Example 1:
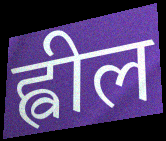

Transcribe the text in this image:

ह्वील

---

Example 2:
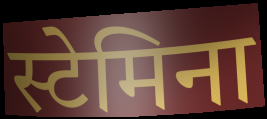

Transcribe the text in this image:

स्टेमिना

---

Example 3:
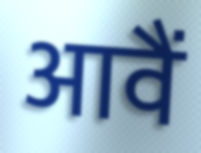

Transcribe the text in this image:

आवैं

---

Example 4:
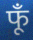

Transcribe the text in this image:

फूँ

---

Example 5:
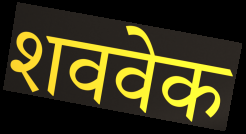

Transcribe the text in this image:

शववेक